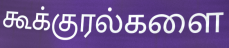
கூக்குரல்களை